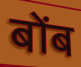
बोंब